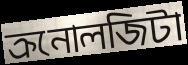
ক্রনোলজিটা